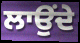
ਲਾਉਂਦੇ